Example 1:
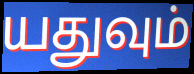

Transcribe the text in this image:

யதுவும்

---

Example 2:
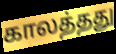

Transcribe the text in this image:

காலத்தது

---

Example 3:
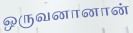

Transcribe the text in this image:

ஒருவனானான்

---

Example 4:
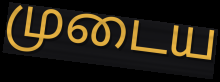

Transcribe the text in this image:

முடைய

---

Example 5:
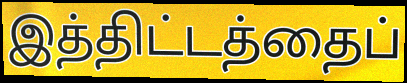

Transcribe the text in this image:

இத்திட்டத்தைப்